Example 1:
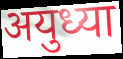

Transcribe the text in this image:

अयुध्या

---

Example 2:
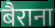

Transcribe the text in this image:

बैराना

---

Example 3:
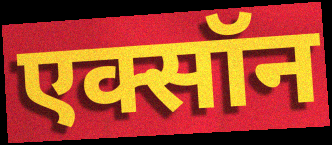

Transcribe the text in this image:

एक्सॉन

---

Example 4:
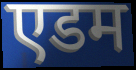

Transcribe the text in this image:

एडम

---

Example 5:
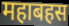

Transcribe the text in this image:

महाबहस